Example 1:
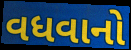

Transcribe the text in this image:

વધવાનો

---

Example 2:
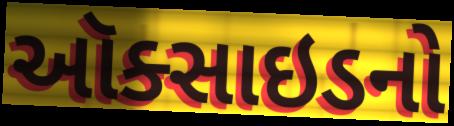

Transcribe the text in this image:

ઑક્સાઇડનો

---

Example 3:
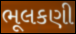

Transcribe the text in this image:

ભૂલકણી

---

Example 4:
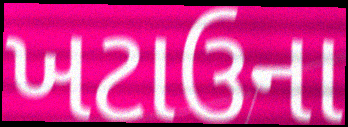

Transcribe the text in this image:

ખટાઉના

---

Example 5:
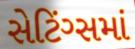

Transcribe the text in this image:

સેટિંગ્સમાં